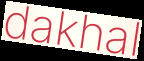
dakhal